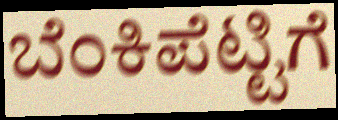
ಬೆಂಕಿಪೆಟ್ಟಿಗೆ